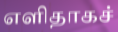
எளிதாகச்